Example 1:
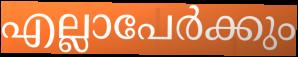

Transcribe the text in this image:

എല്ലാപേർക്കും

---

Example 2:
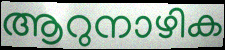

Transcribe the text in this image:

ആറുനാഴിക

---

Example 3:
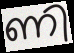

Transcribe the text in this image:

ണി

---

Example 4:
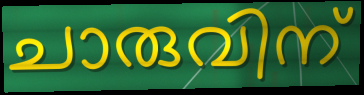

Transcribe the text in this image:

ചാരുവിന്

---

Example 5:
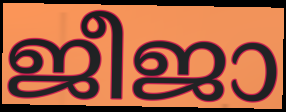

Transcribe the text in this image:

ജീജാ